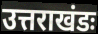
उत्तराखंडः